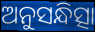
ଅନୁସନ୍ଧିତ୍ସା